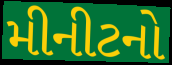
મીનીટનો